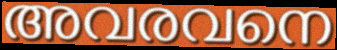
അവരവനെ